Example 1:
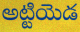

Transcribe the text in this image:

అట్టియెడ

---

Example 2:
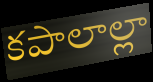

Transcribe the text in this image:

కపాలాల్లా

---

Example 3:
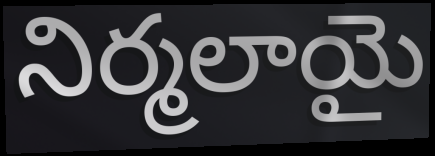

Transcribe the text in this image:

నిర్మలాయై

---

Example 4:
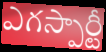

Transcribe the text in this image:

ఎగస్పార్టీ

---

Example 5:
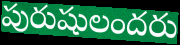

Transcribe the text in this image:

పురుషులందరు